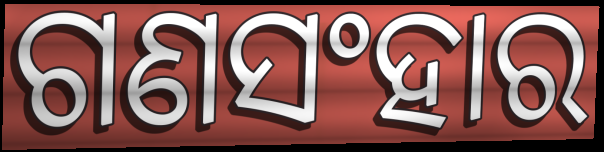
ଗଣସଂହାର